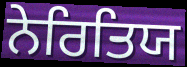
ਨੇਰਿਤਿਯ